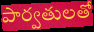
పార్వతులతో